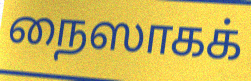
நைஸாகக்